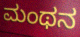
ಮಂಥನ